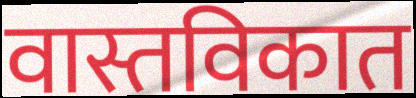
वास्तविकात